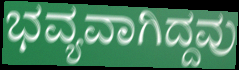
ಭವ್ಯವಾಗಿದ್ದವು